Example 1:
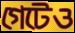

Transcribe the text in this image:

গেটেও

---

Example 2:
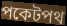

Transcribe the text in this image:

পকেটপথ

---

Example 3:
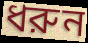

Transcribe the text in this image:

ধরুন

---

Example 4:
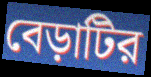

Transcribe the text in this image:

বেড়াটির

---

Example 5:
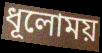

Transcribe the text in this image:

ধূলোময়